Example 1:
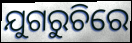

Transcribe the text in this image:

ଯୁଗରୁଚିରେ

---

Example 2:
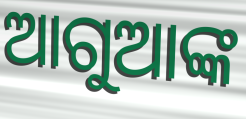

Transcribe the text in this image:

ଆଗୁଆଙ୍କ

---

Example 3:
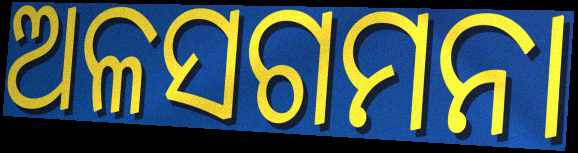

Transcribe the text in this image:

ଅଳସଗମନା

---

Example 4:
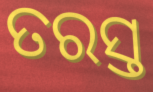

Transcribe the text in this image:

ତରସ୍ତ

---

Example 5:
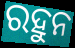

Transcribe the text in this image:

ରହୁନ